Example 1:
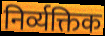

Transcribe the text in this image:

निर्व्यक्तिक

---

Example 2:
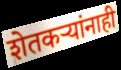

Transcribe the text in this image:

शेतकऱ्यांनाही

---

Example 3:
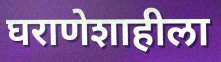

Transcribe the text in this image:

घराणेशाहीला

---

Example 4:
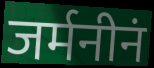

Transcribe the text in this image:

जर्मनीनं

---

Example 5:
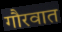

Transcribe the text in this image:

गौरवात